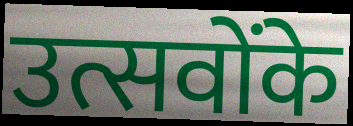
उत्सवोंके